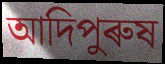
আদিপুৰুষ